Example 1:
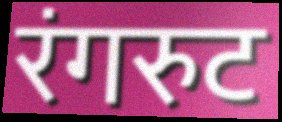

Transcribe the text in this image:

रंगरुट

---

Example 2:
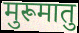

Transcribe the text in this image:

मुरूमातु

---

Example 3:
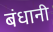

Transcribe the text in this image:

बंधानी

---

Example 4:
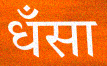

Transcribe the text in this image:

धँसा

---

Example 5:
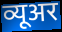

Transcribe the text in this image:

व्यूअर